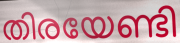
തിരയേണ്ടി